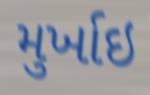
મુર્ખાઇ